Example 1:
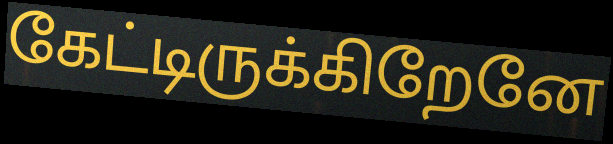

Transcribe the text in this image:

கேட்டிருக்கிறேனே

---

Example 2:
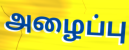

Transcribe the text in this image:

அழைப்பு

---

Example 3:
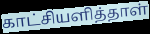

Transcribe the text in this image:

காட்சியளித்தாள்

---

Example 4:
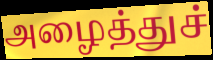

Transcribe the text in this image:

அழைத்துச்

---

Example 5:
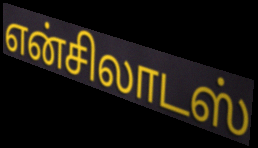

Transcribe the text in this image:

என்சிலாடஸ்